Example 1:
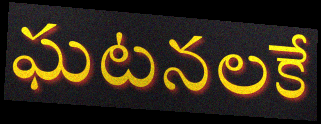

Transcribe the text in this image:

ఘటనలకే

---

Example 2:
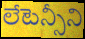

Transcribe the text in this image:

లేటెన్సీని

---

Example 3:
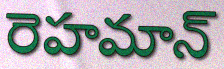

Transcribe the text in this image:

రెహమాన్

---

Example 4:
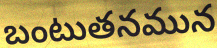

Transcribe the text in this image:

బంటుతనమున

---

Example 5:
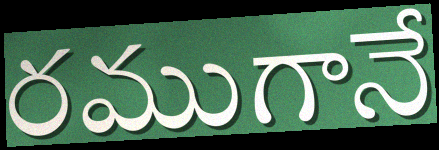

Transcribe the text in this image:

రముగానే